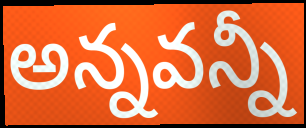
అన్నవన్నీ